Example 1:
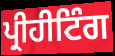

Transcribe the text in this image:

ਪ੍ਰੀਹੀਟਿੰਗ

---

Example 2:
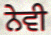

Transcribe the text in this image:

ਨੇਵੀ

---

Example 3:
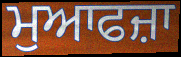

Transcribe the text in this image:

ਮੁਆਫਜ਼ਾ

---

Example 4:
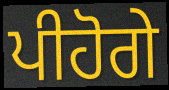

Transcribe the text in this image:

ਪੀਹੋਗੇ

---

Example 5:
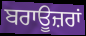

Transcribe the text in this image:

ਬਰਾਊਜ਼ਰਾਂ